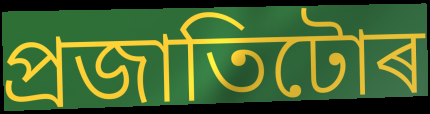
প্ৰজাতিটোৰ